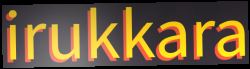
irukkara